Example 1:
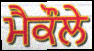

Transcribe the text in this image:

ਮੈਕੌਲੇ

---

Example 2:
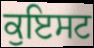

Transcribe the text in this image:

ਕੁਇਸਟ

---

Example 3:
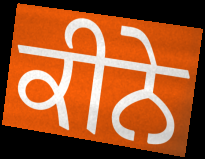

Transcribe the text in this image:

ਕੀਨੇ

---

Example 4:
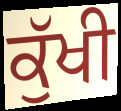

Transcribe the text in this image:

ਕੁੱਖੀ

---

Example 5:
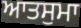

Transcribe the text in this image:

ਆਤਸੁਮਾ